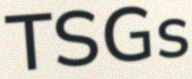
TSGs